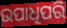
ଉପାଧିପରି